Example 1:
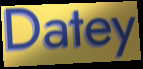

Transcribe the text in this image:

Datey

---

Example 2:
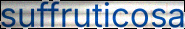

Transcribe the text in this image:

suffruticosa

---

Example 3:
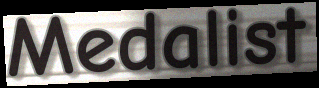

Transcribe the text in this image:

Medalist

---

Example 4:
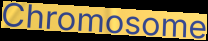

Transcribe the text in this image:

Chromosome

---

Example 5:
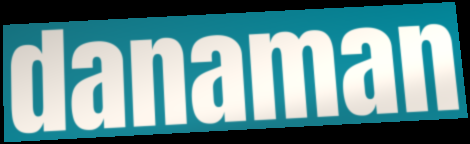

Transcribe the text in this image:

danaman